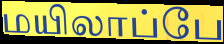
மயிலாப்பே